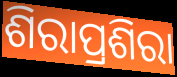
ଶିରାପ୍ରଶିରା